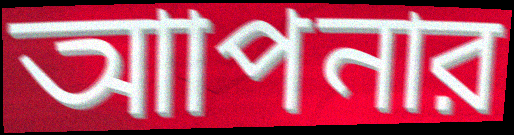
আাপনার